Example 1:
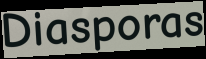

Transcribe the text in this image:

Diasporas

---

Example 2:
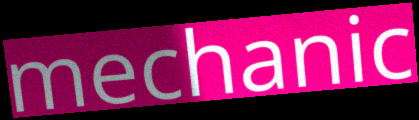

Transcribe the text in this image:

mechanic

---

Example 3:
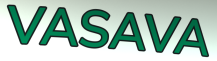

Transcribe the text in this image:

VASAVA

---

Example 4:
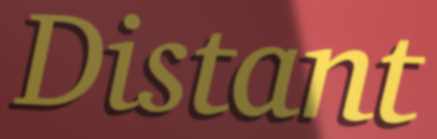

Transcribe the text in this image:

Distant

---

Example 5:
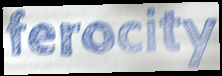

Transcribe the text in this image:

ferocity